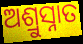
ଅଶ୍ରୁସ୍ନାତ